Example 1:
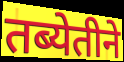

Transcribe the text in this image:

तब्येतीने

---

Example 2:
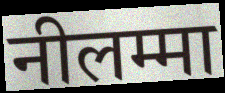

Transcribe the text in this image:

नीलम्मा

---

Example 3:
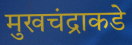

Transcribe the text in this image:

मुखचंद्राकडे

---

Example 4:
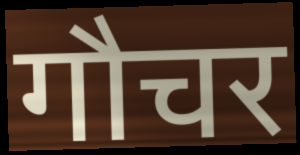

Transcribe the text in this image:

गौचर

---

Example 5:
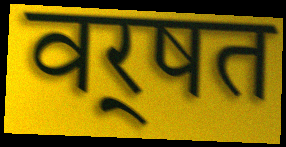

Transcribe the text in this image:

वर्षत